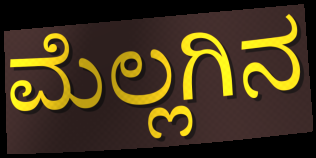
ಮೆಲ್ಲಗಿನ